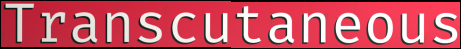
Transcutaneous